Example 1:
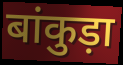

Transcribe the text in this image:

बांकुड़ा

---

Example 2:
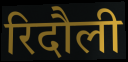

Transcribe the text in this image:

रिदौली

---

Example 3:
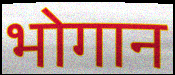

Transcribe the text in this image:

भोगान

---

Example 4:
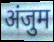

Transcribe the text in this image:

अंजुम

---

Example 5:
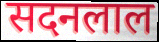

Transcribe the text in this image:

सदनलाल